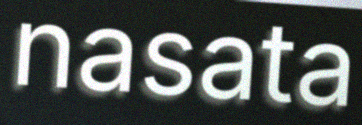
nasata